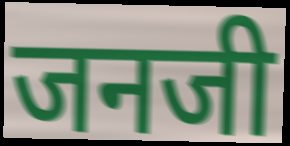
जनजी